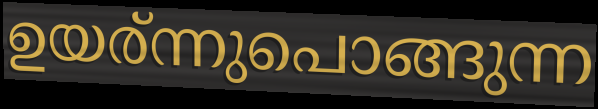
ഉയര്ന്നുപൊങ്ങുന്ന